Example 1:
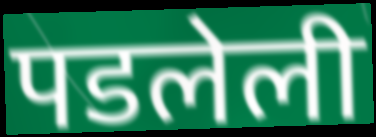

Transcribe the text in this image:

पडलेली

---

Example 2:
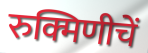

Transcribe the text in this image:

रुक्मिणीचें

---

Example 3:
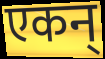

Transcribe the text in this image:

एकन्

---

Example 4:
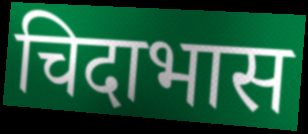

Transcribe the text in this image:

चिदाभास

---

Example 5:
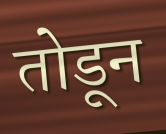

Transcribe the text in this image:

तोडून